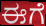
ಈಗೆ